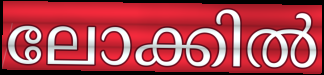
ലോക്കിൽ